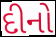
દીનો